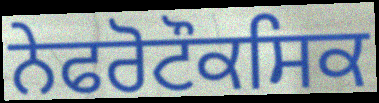
ਨੇਫਰੋਟੌਕਸਿਕ